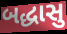
બદ્ધાસુ